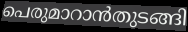
പെരുമാറാൻതുടങ്ങി